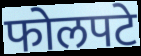
फोलपटे